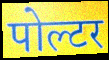
पोल्टर